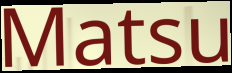
Matsu